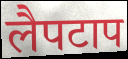
लैपटाप